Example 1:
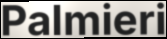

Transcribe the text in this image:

Palmieri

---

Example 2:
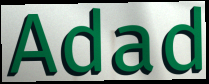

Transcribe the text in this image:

Adad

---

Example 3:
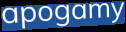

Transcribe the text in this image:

apogamy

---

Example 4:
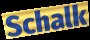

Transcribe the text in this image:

Schalk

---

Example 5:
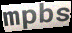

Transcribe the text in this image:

mpbs